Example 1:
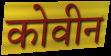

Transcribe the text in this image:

कोवीन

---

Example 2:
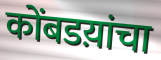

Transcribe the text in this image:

कोंबडय़ांचा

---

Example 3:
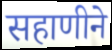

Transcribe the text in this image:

सहाणीने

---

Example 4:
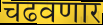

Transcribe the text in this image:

चढवणार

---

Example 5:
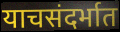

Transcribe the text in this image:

याचसंदर्भात